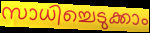
സാധിച്ചെടുക്കാം